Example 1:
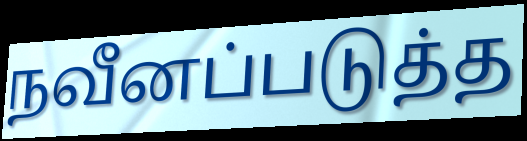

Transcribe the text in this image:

நவீனப்படுத்த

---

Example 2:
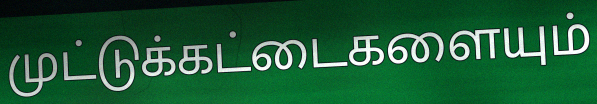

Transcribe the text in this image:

முட்டுக்கட்டைகளையும்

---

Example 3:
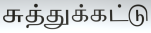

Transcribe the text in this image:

சுத்துக்கட்டு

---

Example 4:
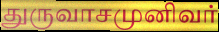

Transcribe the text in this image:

துருவாசமுனிவர்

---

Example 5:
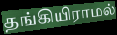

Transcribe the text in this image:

தங்கியிராமல்